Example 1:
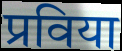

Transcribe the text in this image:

प्रविया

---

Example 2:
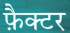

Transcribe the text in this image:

फ़ैक्टर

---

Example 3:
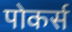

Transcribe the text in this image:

पोकर्स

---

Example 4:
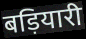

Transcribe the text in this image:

बड़ियारी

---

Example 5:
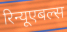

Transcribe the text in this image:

रिन्यूएबल्स